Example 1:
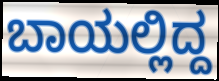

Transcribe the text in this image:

ಬಾಯಲ್ಲಿದ್ದ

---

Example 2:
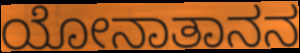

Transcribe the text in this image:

ಯೋನಾತಾನನ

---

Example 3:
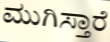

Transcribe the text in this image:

ಮುಗಿಸ್ತಾರೆ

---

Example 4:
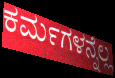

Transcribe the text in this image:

ಕರ್ಮಗಳನ್ನೆಲ್ಲ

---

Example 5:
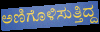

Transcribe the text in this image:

ಅಣಿಗೊಳಿಸುತ್ತಿದ್ದ